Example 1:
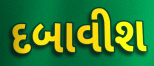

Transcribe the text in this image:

દબાવીશ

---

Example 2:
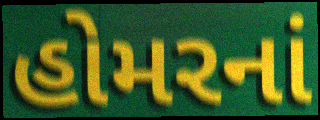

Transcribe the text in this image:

હોમરનાં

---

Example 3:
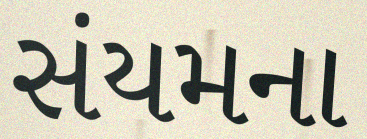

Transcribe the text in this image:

સંયમના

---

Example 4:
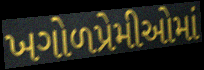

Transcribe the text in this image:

ખગોળપ્રેમીઓમાં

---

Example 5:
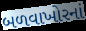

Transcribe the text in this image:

બળવાખોરનાં